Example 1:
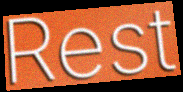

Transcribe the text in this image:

Rest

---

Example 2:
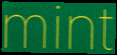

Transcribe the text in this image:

mint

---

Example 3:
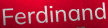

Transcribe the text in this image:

Ferdinand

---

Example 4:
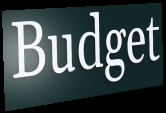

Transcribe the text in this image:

Budget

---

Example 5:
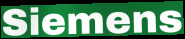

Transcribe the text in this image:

Siemens